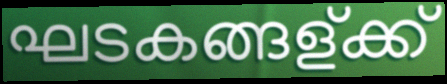
ഘടകങ്ങള്ക്ക്